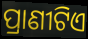
ପ୍ରାଣୀଟିଏ